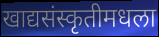
खाद्यसंस्कृतीमधला